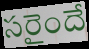
సరైందే